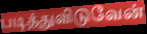
படித்துவிடுவேன்